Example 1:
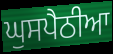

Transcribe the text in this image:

ਘੁਸਪੈਠੀਆ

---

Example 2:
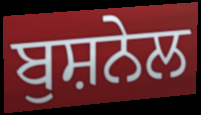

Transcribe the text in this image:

ਬੁਸ਼ਨੇਲ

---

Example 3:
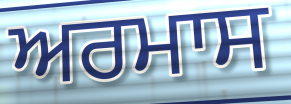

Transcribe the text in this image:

ਅਰਮਾਸ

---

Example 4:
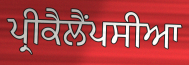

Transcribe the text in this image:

ਪ੍ਰੀਕੈਲੈਂਪਸੀਆ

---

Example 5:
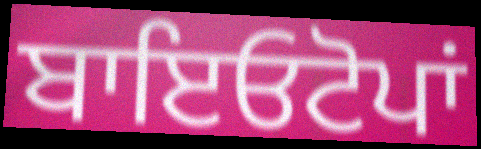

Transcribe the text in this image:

ਬਾਇਓਟੋਪਾਂ